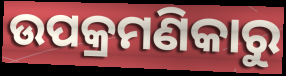
ଉପକ୍ରମଣିକାରୁ